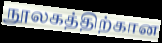
நூலகத்திற்கான